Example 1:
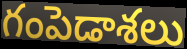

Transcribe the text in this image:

గంపెడాశలు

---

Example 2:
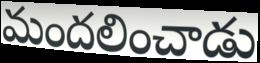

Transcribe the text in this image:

మందలించాడు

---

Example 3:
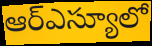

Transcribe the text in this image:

ఆర్ఎస్యూలో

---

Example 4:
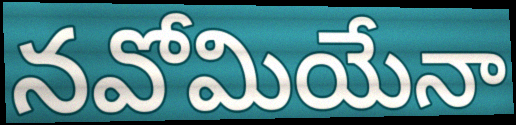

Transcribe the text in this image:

నవోమియేనా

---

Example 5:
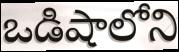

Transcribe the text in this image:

ఒడిషాలోని